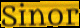
Sinor